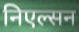
निएल्सन